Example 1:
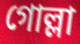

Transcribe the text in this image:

গোল্লা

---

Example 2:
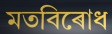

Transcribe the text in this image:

মতবিৰোধ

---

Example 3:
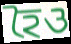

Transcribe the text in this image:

হৈও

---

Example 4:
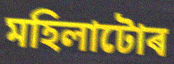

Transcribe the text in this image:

মহিলাটোৰ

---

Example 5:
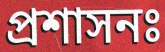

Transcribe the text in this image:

প্ৰশাসনঃ